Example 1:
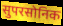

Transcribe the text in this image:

सुपरसोनिक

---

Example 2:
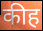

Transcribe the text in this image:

कीह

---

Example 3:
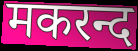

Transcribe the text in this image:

मकरन्द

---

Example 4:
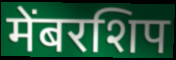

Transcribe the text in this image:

मेंबरशिप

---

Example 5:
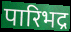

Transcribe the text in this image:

पारिभद्र